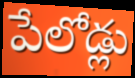
పేలోడ్లు